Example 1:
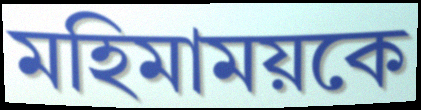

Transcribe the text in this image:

মহিমাময়কে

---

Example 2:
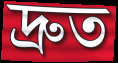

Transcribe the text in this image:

দ্রুত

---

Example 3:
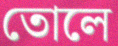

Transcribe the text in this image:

তোলে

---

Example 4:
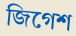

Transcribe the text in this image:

জিগেশ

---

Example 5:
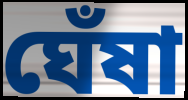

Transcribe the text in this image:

ঘেঁষা